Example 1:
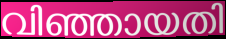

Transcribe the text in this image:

വിഞ്ഞായതി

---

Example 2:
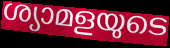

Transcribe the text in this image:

ശ്യാമളയുടെ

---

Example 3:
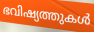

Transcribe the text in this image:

ഭവിഷ്യത്തുകൾ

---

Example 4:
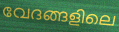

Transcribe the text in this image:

വേദങ്ങളിലെ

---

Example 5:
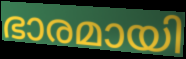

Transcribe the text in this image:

ഭാരമായി